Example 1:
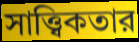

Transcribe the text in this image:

সাত্ত্বিকতার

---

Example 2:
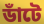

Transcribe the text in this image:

ডাঁটে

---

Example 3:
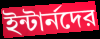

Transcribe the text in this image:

ইন্টার্নদের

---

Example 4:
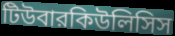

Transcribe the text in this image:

টিউবারকিউলিসিস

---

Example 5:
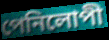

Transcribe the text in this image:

পেনিলোপী